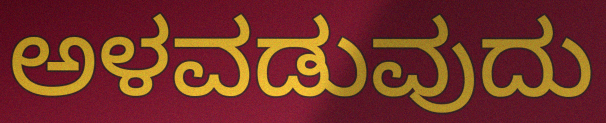
ಅಳವಡುವುದು